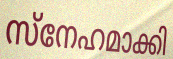
സ്നേഹമാക്കി